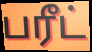
பரீட்